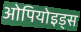
ओपियोइड्स